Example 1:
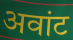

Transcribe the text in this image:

अवांट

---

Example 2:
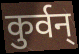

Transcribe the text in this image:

कुर्वन्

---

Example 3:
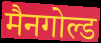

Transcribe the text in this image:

मैनगोल्ड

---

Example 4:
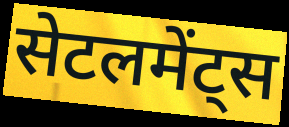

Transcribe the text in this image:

सेटलमेंट्स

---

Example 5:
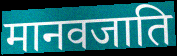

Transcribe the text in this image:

मानवजाति